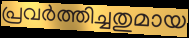
പ്രവർത്തിച്ചതുമായ